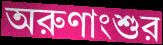
অরুণাংশুর